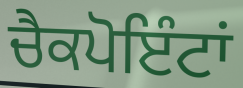
ਚੈਕਪੋਇੰਟਾਂ